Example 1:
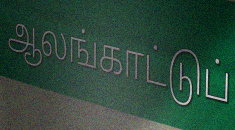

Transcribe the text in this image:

ஆலங்காட்டுப்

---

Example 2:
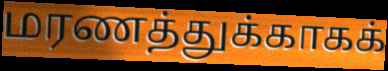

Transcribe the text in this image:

மரணத்துக்காகக்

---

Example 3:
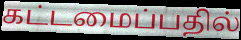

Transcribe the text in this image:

கட்டமைப்பதில்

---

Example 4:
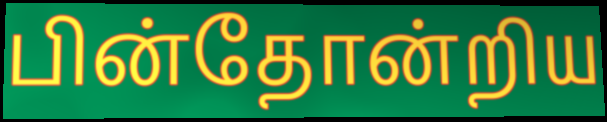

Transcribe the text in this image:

பின்தோன்றிய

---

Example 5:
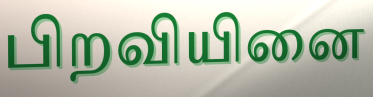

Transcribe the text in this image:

பிறவியினை